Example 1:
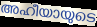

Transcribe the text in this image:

അഹീയായുടെ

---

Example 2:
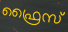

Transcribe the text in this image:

ഫ്രൈസ്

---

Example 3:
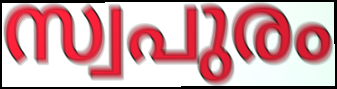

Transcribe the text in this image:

സ്വപുരം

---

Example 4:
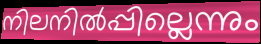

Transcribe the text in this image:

നിലനിൽപ്പില്ലെന്നും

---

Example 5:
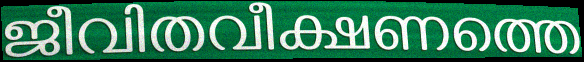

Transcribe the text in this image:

ജീവിതവീക്ഷണത്തെ